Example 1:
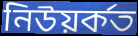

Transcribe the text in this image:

নিউয়ৰ্কত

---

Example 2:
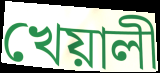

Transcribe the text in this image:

খেয়ালী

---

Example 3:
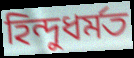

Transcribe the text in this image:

হিন্দুধৰ্মত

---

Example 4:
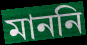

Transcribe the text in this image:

মাননি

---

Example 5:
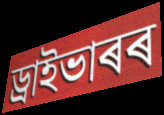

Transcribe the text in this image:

ড্ৰাইভাৰৰ